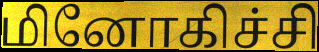
மினோகிச்சி